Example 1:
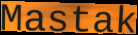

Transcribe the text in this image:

Mastak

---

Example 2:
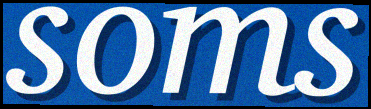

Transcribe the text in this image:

soms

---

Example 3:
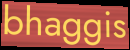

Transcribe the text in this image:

bhaggis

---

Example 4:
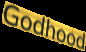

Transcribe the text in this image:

Godhood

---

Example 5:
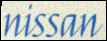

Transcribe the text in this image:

nissan